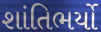
શાંતિભર્યો